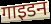
गाइडन